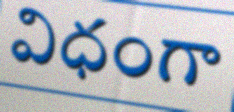
విధంగా